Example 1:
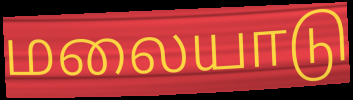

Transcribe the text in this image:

மலையாடு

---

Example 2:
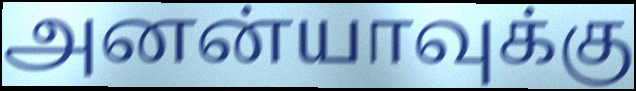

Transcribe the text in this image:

அனன்யாவுக்கு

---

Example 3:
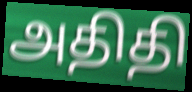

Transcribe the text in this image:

அதிதி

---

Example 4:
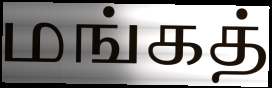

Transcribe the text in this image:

மங்கத்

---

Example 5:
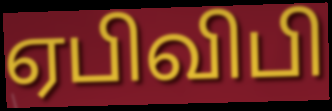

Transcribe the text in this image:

ஏபிவிபி